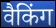
वैकिंग